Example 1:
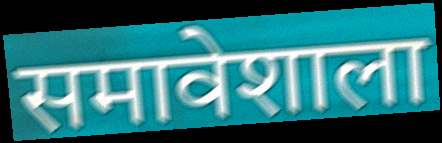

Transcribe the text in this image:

समावेशाला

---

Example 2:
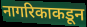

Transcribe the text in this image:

नागरिकाकडून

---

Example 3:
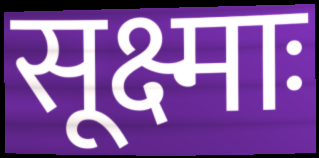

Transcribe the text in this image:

सूक्ष्माः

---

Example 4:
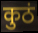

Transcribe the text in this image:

कुठं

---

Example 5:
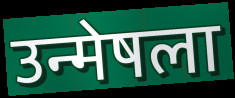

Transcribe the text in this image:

उन्मेषला